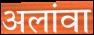
अलांवा